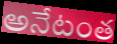
అనేటంత